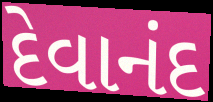
દેવાનંદ